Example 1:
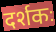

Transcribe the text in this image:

दर्शकः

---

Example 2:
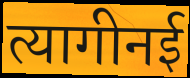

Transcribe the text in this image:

त्यागीनई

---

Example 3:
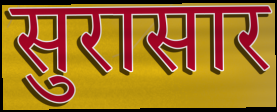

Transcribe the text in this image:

सुरासार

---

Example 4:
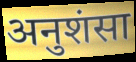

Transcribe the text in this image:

अनुशंसा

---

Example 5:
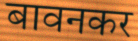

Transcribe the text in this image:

बावनकर